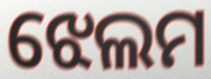
ଝେଲମ